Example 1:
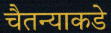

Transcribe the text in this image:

चैतन्याकडे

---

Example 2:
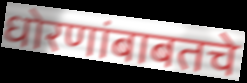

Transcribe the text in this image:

धोरणांबाबतचे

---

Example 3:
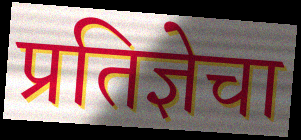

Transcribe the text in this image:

प्रतिज्ञेचा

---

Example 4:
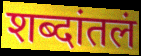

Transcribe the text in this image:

शब्दांतलं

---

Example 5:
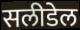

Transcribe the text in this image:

सलीडेल